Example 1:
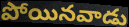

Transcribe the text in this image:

పోయినవాడు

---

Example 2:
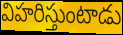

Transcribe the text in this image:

విహరిస్తుంటాడు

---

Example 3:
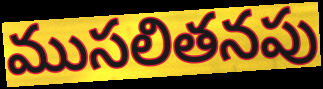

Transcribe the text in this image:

ముసలితనపు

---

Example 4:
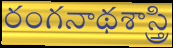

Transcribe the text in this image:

రంగనాథశాస్త్రి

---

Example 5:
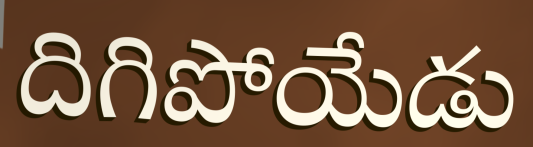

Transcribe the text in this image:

దిగిపోయేడు